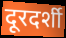
दूरदर्शी